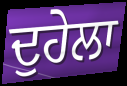
ਦੁਹੇਲਾ